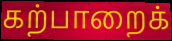
கற்பாறைக்